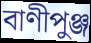
বাণীপুঞ্জ